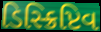
ડિસ્ક્રિપ્ટિવ